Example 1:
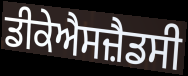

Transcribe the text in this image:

ਡੀਕੇਐਸਜ਼ੈਡਸੀ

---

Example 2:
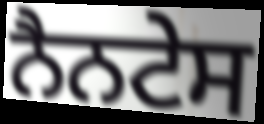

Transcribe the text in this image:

ਨੈਨਟੇਸ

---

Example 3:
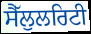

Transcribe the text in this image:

ਸੈੱਲੁਲਰਿਟੀ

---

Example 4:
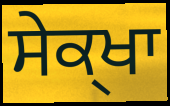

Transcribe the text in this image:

ਸੇਕ੍ਖਾ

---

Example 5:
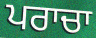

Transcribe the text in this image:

ਪਰਾਚਾ